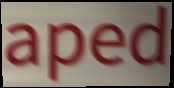
aped